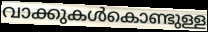
വാക്കുകൾകൊണ്ടുള്ള